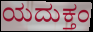
ಯದುಕ್ತಂ